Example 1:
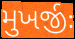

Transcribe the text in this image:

મુખર્જીઃ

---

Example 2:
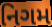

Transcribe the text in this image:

નિગમ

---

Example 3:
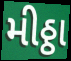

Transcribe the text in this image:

મીઠ્ઠા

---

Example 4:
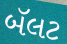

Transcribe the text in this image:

બૅલટ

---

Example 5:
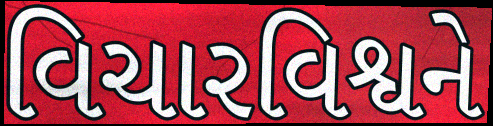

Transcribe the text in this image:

વિચારવિશ્વને